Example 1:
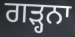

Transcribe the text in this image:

ਗੜ੍ਹਨਾ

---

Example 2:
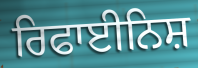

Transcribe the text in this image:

ਰਿਫਾਈਨਿਸ਼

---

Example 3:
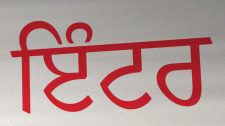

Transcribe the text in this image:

ਇੰਟਰ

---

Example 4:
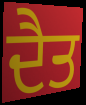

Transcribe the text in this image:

ਦੈਤ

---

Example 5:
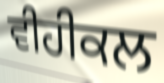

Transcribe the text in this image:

ਵੀਹੀਕਲ